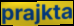
prajkta